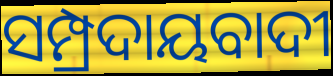
ସମ୍ପ୍ରଦାୟବାଦୀ